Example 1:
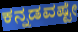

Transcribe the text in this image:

ಕನ್ನಡವಷ್ಟೇ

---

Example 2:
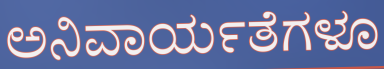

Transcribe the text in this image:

ಅನಿವಾರ್ಯತೆಗಳೂ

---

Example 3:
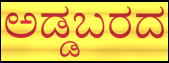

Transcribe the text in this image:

ಅಡ್ಡಬರದ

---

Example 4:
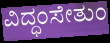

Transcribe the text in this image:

ವಿದ್ಧಂಸೇತುಂ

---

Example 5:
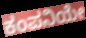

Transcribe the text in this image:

ಕಂಪನಿಯೇ